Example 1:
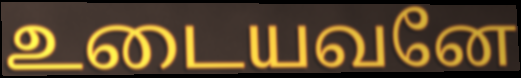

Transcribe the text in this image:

உடையவனே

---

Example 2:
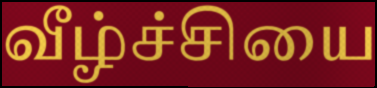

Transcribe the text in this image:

வீழ்ச்சியை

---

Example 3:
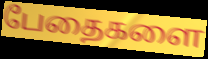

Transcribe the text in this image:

பேதைகளை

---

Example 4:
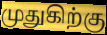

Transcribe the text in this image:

முதுகிற்கு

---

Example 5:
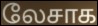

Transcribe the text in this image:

லேசாக